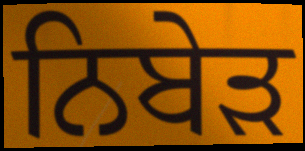
ਨਿਬੇੜ